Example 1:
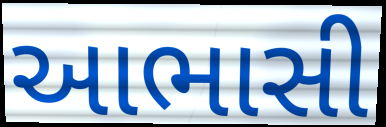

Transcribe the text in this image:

આભાસી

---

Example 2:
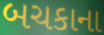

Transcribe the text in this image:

બચકાના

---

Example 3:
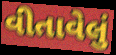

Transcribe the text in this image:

વીતાવેલું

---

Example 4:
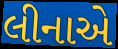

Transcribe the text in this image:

લીનાએ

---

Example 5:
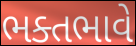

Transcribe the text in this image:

ભક્તભાવે